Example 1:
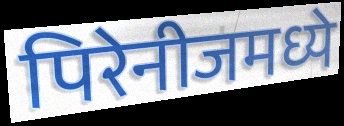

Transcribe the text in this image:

पिरेनीजमध्ये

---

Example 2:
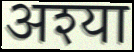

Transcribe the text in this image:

अश्या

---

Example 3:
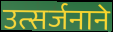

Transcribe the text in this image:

उत्सर्जनाने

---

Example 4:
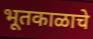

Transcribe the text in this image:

भूतकाळाचे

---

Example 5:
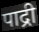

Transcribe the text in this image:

पाद्री